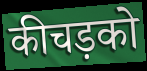
कीचड़को